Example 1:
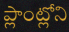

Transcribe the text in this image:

ప్లాంట్లోని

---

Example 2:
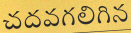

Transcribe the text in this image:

చదవగలిగిన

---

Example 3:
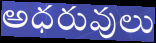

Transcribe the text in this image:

అధరువులు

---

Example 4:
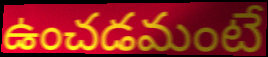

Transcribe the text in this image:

ఉంచడమంటే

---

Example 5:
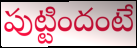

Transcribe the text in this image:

పుట్టిందంటే